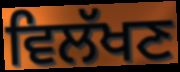
ਵਿਲੱਖਣ